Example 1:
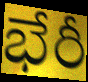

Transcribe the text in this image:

భేరీ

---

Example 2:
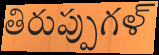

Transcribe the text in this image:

తిరుప్పుగళ్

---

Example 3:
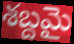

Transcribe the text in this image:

శబ్దమై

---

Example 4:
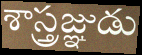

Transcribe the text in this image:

శాస్త్రజ్ఞుడు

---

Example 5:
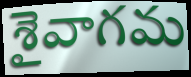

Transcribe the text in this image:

శైవాగమ